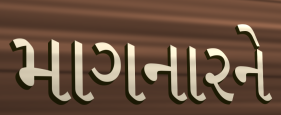
માગનારને